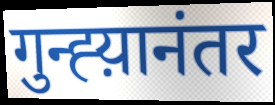
गुन्ह्य़ानंतर